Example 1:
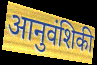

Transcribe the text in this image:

आनुवंशिकी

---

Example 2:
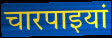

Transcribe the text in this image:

चारपाइयां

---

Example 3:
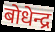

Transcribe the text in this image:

बोधेन्द्र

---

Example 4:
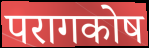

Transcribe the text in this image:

परागकोष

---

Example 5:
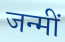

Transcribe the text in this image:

जन्मीं